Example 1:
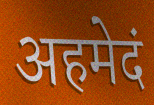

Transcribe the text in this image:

अहमेदं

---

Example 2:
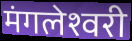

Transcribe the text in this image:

मंगलेश्वरी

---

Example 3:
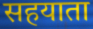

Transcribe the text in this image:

सहयाता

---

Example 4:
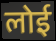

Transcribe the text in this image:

लोई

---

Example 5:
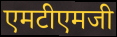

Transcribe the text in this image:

एमटीएमजी